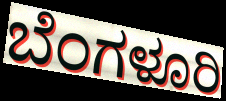
ಬೆಂಗಳೂರಿ